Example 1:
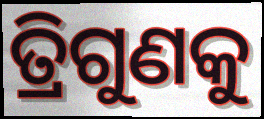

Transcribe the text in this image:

ତ୍ରିଗୁଣକୁ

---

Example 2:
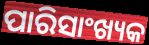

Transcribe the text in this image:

ପାରିସାଂଖ୍ୟକ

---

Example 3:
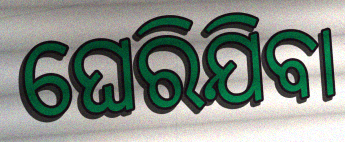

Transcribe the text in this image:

ଘେରିଯିବା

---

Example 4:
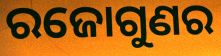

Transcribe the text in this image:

ରଜୋଗୁଣର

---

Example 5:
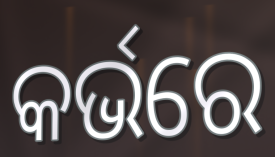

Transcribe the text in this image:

କର୍ଭରେ